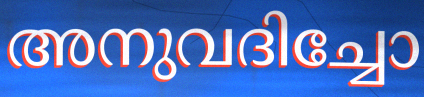
അനുവദിച്ചോ